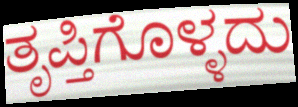
ತೃಪ್ತಿಗೊಳ್ಳದು